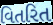
વિતરિત